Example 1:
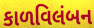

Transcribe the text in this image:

કાળવિલંબન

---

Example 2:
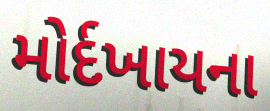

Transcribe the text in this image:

મોર્દખાયના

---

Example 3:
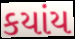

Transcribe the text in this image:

કયાંય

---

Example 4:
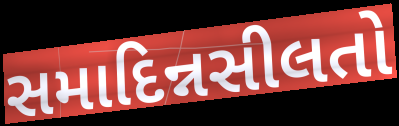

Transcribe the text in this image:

સમાદિન્નસીલતો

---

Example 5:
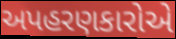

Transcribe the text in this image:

અપહરણકારોએ